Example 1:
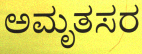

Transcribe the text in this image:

ಅಮೃತಸರ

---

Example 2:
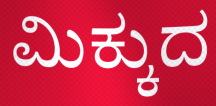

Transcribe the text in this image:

ಮಿಕ್ಕುದ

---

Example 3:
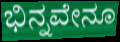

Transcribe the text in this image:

ಭಿನ್ನವೇನೂ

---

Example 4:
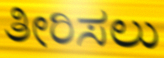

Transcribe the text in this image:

ತೀರಿಸಲು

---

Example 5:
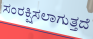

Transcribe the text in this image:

ಸಂರಕ್ಷಿಸಲಾಗುತ್ತದೆ